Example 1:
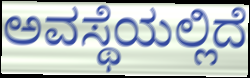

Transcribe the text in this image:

ಅವಸ್ಥೆಯಲ್ಲಿದೆ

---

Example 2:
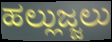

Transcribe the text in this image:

ಹಲ್ಲುಜ್ಜಲು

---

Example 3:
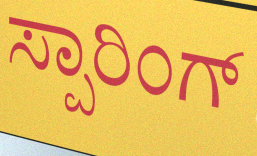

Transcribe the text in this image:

ಸ್ಪಾರಿಂಗ್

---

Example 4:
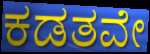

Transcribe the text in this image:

ಕಡತವೇ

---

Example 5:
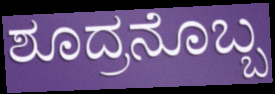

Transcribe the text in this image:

ಶೂದ್ರನೊಬ್ಬ